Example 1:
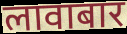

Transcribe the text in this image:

लावाबार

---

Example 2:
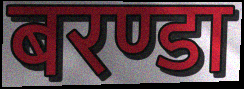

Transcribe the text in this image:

बरण्डा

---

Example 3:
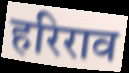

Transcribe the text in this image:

हरिराव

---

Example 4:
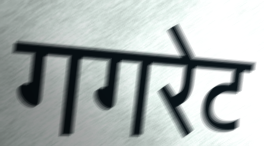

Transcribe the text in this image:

गगरेट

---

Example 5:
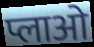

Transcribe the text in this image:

प्लाओ